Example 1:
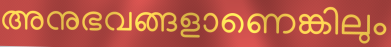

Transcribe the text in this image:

അനുഭവങ്ങളാണെങ്കിലും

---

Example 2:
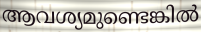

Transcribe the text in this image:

ആവശ്യമുണ്ടെങ്കിൽ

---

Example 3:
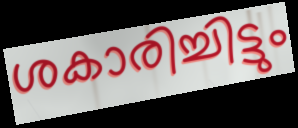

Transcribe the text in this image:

ശകാരിച്ചിട്ടും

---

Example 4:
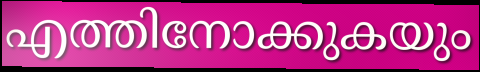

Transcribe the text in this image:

എത്തിനോക്കുകയും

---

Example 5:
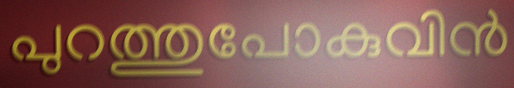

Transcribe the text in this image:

പുറത്തുപോകുവിൻ